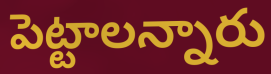
పెట్టాలన్నారు